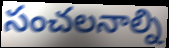
సంచలనాల్ని